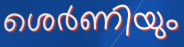
ശെർണിയും